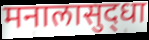
मनालासुद्धा